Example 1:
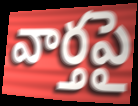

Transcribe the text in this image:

వార్తపై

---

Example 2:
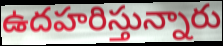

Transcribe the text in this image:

ఉదహరిస్తున్నారు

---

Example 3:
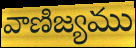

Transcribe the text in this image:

వాణిజ్యము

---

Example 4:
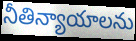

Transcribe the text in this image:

నీతిన్యాయాలను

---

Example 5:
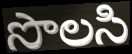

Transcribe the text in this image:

సొలసి